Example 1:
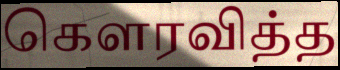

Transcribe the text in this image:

கெளரவித்த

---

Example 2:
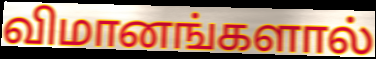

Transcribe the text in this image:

விமானங்களால்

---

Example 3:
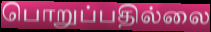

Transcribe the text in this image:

பொறுப்பதில்லை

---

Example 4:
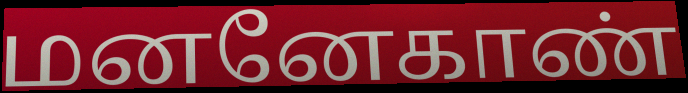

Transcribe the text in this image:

மனனேகாண்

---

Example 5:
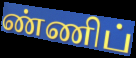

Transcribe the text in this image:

ண்ணிப்